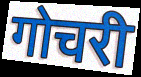
गोचरी